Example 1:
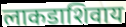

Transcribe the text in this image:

लाकडाशिवाय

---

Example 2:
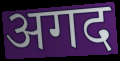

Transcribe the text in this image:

अगद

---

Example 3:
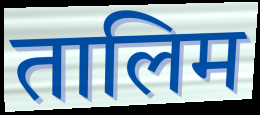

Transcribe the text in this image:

तालिम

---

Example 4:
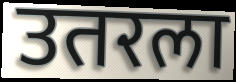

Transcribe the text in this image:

उतरला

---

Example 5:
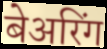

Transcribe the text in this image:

बेअरिंग